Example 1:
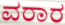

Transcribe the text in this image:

ವರಾರ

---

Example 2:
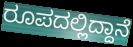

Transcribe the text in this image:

ರೂಪದಲ್ಲಿದ್ದಾನೆ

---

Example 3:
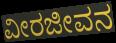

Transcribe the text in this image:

ವೀರಜೀವನ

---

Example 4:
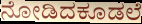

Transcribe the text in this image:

ನೋಡಿದಕೂಡಲೆ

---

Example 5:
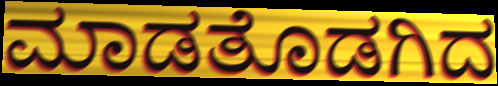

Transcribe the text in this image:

ಮಾಡತೊಡಗಿದ